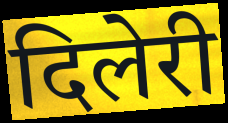
दिलेरी